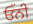
ਓੱਨੀ